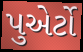
પુએર્ટો